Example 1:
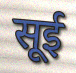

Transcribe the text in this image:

सूई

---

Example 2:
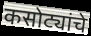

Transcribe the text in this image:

कसोट्यांचे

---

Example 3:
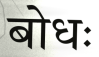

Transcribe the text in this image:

बोधः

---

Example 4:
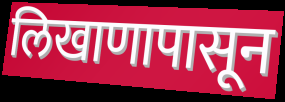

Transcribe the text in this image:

लिखाणापासून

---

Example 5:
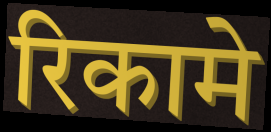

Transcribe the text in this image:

रिकामे